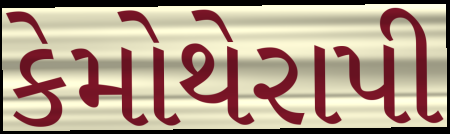
કેમોથેરાપી